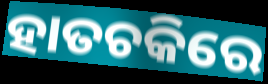
ହାତଚକିରେ